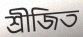
শ্রীজিত